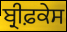
ਬ੍ਰੀਫ਼ਕੇਸ